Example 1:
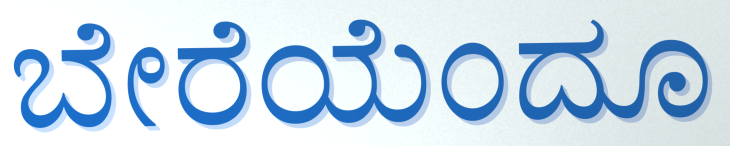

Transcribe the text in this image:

ಬೇರೆಯೆಂದೂ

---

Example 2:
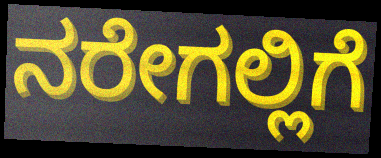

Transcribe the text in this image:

ನರೇಗಲ್ಲಿಗೆ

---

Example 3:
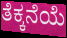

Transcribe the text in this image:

ತೆಕ್ಕನೆಯೆ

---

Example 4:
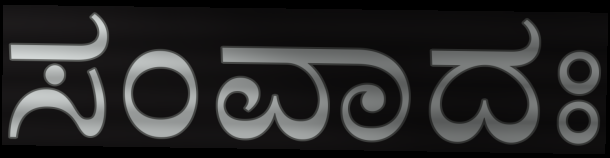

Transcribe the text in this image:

ಸಂವಾದಃ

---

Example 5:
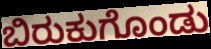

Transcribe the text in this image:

ಬಿರುಕುಗೊಂಡು